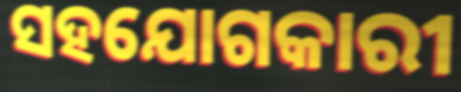
ସହଯୋଗକାରୀ